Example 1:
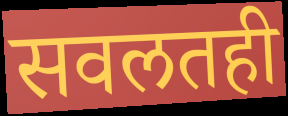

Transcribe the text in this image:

सवलतही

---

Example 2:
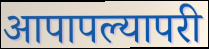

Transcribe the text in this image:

आपापल्यापरी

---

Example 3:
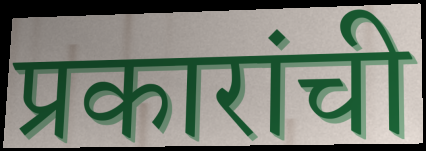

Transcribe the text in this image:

प्रकारांची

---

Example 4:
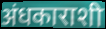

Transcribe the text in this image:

अंधकाराशी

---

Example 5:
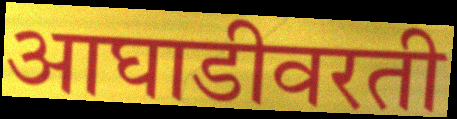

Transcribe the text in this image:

आघाडीवरती